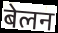
बेलन